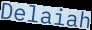
Delaiah